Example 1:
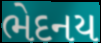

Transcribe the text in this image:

ભેદનય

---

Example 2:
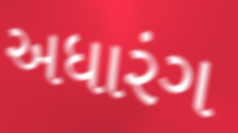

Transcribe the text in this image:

અધારંગ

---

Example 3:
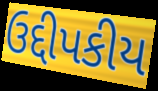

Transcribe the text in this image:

ઉદ્દીપકીય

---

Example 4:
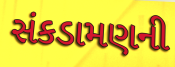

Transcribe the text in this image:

સંકડામણની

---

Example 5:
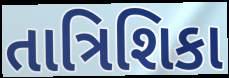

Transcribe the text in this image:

તાત્રિશિકા